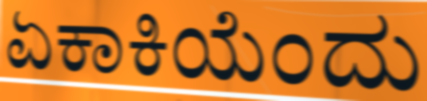
ಏಕಾಕಿಯೆಂದು